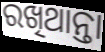
ରଖିଥାନ୍ତା